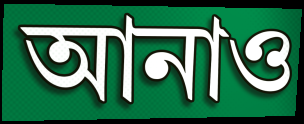
আনাও